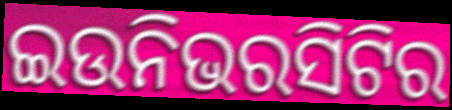
ଇଉନିଭରସିଟିର